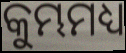
କୁମ୍ଭମଧ୍ୟ